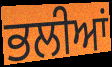
ਭਲੀਆਂ